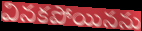
వినకపోయినను